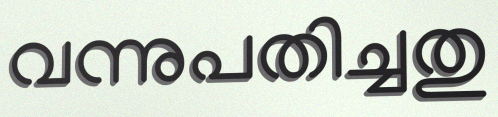
വന്നുപതിച്ചതു